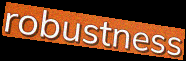
robustness